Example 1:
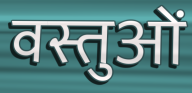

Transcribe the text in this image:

वस्तुओं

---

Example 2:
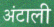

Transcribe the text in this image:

अंटाली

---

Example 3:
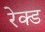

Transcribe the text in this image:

रेक्ड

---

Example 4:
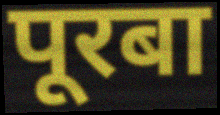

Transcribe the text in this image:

पूरबा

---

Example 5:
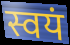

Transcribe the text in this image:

स्‍वयं